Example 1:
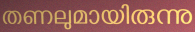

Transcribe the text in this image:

തണലുമായിരുന്നു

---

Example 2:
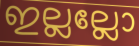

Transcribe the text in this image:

ഇല്ലല്ലോ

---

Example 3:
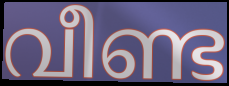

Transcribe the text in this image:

വീണ്ട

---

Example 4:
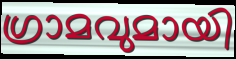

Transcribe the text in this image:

ഗ്രാമവുമായി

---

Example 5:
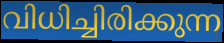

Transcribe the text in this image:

വിധിച്ചിരിക്കുന്ന